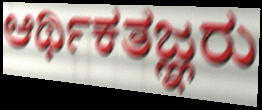
ಆರ್ಥಿಕತಜ್ಞರು